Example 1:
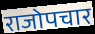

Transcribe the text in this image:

राजोपचार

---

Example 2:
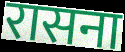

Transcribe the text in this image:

रासना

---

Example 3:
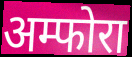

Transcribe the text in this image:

अम्फोरा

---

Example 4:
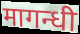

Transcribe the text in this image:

मागन्धी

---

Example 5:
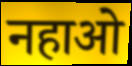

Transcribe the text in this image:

नहाओ